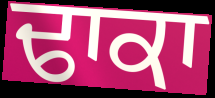
ਢਾਕਾ